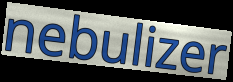
nebulizer